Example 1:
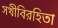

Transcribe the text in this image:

সখীবিরহিতা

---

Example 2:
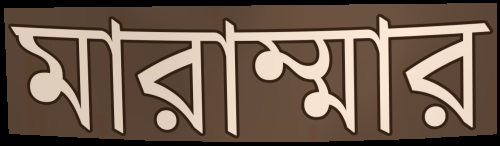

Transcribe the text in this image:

মারাম্মার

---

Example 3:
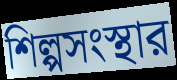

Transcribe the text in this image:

শিল্পসংস্থার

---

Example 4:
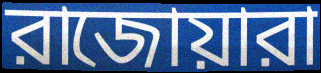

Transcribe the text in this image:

রাজোয়ারা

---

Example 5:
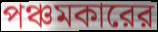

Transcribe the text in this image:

পঞ্চমকারের